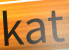
kat